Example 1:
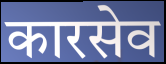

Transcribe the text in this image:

कारसेव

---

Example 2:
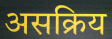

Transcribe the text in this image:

असक्रिय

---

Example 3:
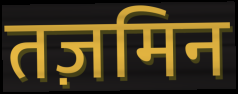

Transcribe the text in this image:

तज़मिन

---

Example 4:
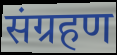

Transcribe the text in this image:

संग्रहण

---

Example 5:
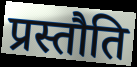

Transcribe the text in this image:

प्रस्तौति